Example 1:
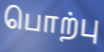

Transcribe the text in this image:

பொற்பு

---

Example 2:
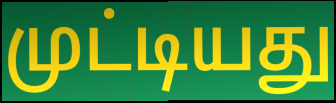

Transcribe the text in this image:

முட்டியது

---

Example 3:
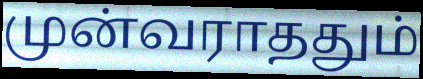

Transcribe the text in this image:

முன்வராததும்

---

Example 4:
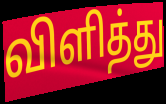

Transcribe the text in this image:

விளித்து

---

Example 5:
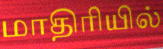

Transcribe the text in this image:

மாதிரியில்